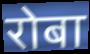
रोबा